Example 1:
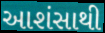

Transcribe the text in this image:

આશંસાથી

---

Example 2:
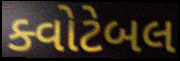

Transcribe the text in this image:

ક્વોટેબલ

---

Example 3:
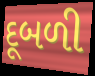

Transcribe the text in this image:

દૂબળી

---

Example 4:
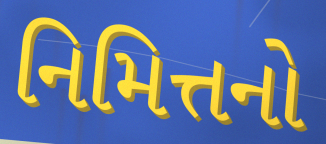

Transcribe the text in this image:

નિમિત્તનો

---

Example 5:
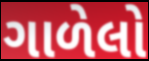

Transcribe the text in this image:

ગાળેલો